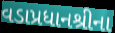
વડાપ્રધાનશ્રીના